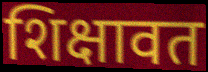
शिक्षावत